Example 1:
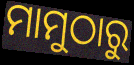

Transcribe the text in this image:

ମାମୁଠାରୁ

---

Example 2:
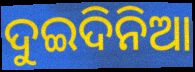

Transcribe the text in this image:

ଦୁଇଦିନିଆ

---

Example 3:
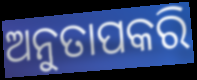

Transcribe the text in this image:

ଅନୁତାପକରି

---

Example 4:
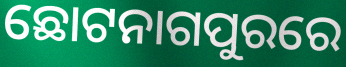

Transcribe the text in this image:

ଛୋଟନାଗପୁରରେ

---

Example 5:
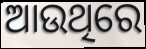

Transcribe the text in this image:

ଆଉଥିରେ